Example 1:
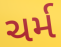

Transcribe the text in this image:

ચર્મ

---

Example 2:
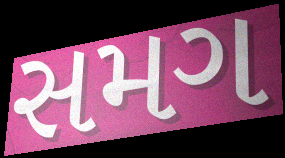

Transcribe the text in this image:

સમગ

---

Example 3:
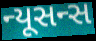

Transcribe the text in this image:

ન્યૂસન્સ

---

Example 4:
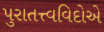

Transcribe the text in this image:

પુરાતત્ત્વવિદોએ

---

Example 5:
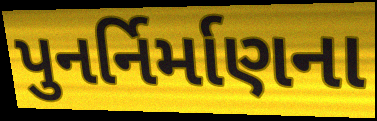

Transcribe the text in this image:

પુનર્નિર્માણના